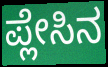
ಪ್ಲೇಸಿನ